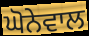
ਘੋਨੇਵਾਲ